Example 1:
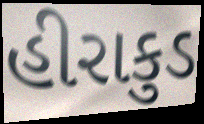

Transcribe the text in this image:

હીરાકુડ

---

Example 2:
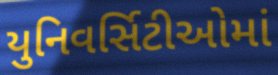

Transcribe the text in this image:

યુનિવર્સિટીઓમાં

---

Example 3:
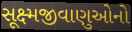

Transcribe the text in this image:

સૂક્ષ્મજીવાણુઓનો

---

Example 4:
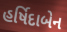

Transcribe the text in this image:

હર્ષિદાબેન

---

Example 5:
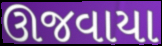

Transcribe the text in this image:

ઊજવાયા